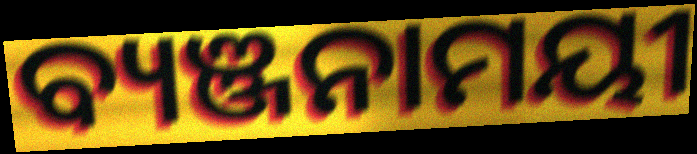
ବ୍ୟଞ୍ଜନାମୟୀ